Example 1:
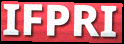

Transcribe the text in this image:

IFPRI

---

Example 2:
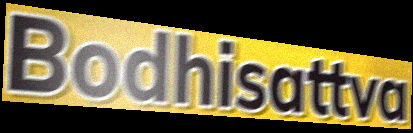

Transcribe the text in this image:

Bodhisattva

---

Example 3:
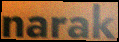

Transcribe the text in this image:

narak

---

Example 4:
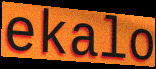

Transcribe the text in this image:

ekalo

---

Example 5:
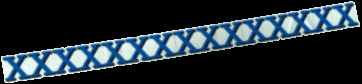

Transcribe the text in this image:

xxxxxxxxxxxxxxx